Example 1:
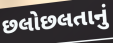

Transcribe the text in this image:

છલોછલતાનું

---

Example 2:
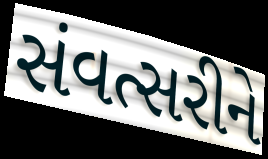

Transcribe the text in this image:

સંવત્સરીને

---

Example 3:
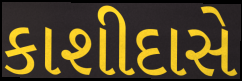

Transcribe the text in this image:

કાશીદાસે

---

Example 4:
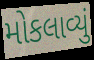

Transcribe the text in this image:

મોકલાવ્યું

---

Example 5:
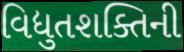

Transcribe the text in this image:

વિદ્યુતશક્તિની